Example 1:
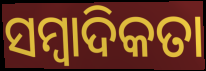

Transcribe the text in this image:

ସମ୍ବାଦିକତା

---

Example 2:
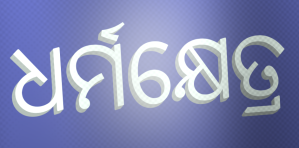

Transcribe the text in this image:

ଧର୍ମକ୍ଷେତ୍ର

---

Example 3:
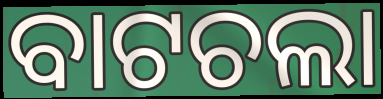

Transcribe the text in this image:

ବାଟଚଲା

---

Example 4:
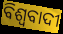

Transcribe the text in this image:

ବିଶ୍ଵବାଦୀ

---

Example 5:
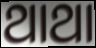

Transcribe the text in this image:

ଥାଥା